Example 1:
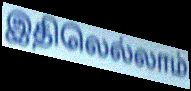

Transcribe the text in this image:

இதிலெல்லாம்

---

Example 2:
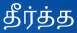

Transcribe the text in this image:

தீர்த்த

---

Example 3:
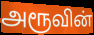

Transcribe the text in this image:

அரூவின்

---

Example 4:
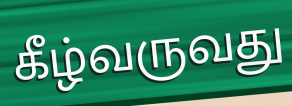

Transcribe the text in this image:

கீழ்வருவது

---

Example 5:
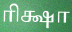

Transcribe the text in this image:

ரிக்ஷா